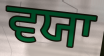
ਵਯਾ